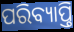
ପରିବ୍ୟାପ୍ତି